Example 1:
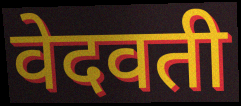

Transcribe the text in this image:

वेदवती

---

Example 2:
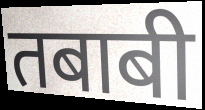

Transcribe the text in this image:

तबाबी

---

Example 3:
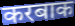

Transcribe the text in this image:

करबाक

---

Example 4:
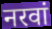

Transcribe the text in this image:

नरवां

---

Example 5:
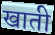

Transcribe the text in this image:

खाती